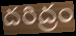
దరిద్రం